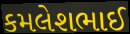
કમલેશભાઈ